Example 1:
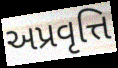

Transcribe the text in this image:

અપ્રવૃત્તિ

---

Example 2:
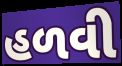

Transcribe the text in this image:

હળવી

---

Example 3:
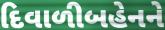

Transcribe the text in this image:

દિવાળીબહેનને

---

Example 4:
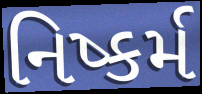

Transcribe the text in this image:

નિષ્કર્મ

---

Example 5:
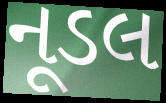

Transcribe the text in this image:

નૂડલ